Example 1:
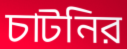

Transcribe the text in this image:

চাটনির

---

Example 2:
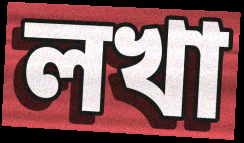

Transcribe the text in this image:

লখা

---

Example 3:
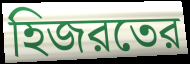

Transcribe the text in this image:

হিজরতের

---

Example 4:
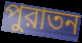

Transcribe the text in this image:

পুরাতন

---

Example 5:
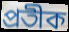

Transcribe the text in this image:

প্রতীক